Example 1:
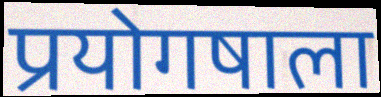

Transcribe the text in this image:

प्रयोगषाला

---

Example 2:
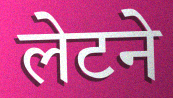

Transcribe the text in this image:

लेटने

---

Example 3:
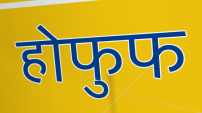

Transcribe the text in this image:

होफुफ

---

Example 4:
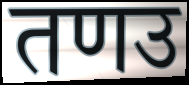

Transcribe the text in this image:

तणउ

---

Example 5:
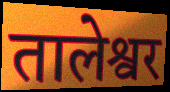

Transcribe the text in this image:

तालेश्वर